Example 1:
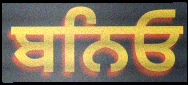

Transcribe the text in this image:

ਬਨਿਓ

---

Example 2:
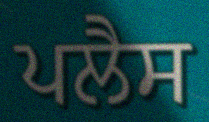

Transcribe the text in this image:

ਪਲੈਸ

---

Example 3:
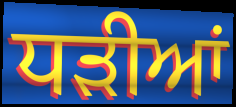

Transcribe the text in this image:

ਧੜੀਆਂ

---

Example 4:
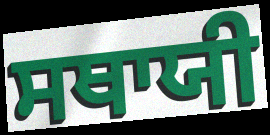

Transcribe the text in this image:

ਸਥਾਯੀ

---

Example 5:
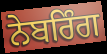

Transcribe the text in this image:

ਨੇਬਰਿੰਗ